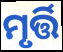
ମୃର୍ତ୍ତି